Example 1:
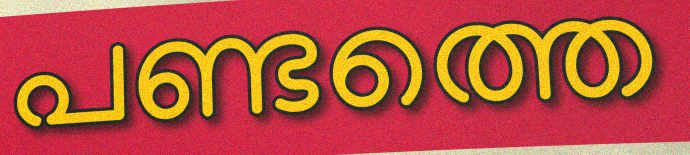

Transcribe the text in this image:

പണ്ടത്തെ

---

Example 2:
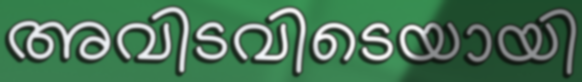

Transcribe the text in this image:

അവിടവിടെയായി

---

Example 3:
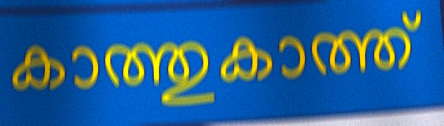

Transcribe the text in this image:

കാത്തുകാത്ത്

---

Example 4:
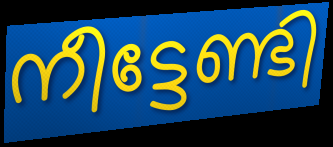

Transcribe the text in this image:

നീട്ടേണ്ടി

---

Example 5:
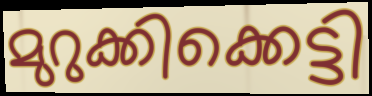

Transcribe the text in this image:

മുറുക്കിക്കെട്ടി